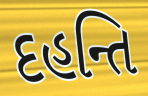
દહન્તિ